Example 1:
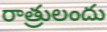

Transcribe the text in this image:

రాత్రులందు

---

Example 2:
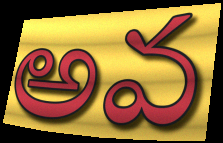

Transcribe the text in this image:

అవ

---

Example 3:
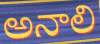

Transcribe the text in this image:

అనాలి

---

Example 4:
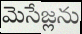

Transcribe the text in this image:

మెసేజ్లను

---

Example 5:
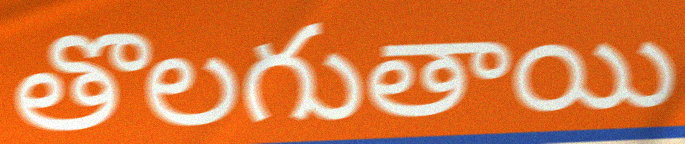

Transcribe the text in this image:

తొలగుతాయి